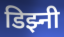
डिझ्नी